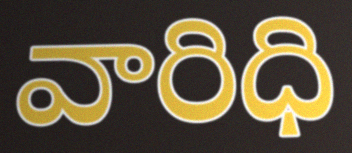
వారిధి